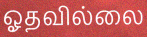
ஓதவில்லை